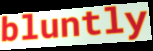
bluntly